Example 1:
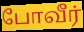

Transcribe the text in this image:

போவீர்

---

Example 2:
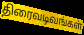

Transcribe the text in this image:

திரைவடிவங்கள்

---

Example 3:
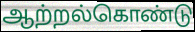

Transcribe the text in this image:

ஆற்றல்கொண்டு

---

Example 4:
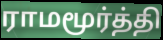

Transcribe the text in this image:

ராமமூர்த்தி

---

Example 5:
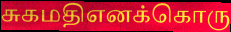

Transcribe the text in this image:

சுகமதிஎனக்கொரு